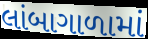
લાંબાગાળામાં